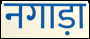
नगाड़ा